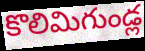
కొలిమిగుండ్ల